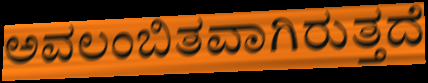
ಅವಲಂಬಿತವಾಗಿರುತ್ತದೆ